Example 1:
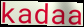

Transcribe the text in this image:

kadaa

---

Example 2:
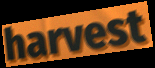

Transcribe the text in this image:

harvest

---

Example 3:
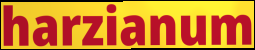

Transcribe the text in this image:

harzianum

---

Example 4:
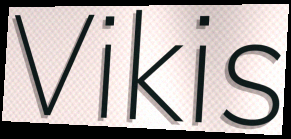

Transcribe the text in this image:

Vikis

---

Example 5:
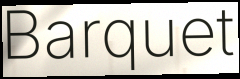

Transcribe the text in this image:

Barquet